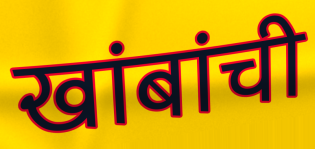
खांबांची